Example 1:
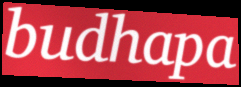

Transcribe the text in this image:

budhapa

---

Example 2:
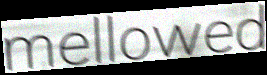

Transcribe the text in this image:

mellowed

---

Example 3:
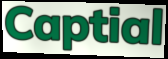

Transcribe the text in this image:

Captial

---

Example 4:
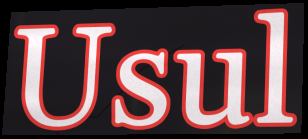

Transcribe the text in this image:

Usul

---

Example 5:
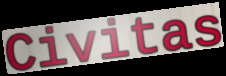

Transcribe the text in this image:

Civitas